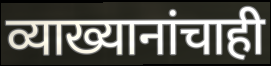
व्याख्यानांचाही